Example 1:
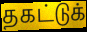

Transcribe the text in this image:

தகட்டுக்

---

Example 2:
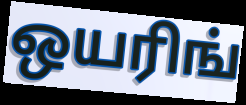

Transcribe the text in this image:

ஒயரிங்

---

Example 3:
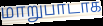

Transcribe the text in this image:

மாறுபாடாக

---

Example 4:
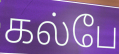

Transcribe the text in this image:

கல்பே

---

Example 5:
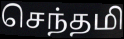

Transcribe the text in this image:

செந்தமி